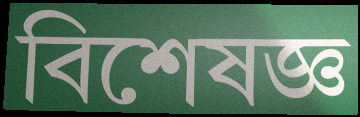
বিশেষজ্ঞ